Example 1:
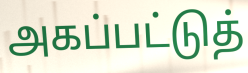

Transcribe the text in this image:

அகப்பட்டுத்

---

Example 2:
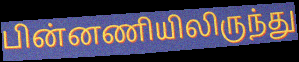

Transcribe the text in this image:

பின்னணியிலிருந்து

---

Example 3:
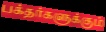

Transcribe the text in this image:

பக்தர்களுக்கும்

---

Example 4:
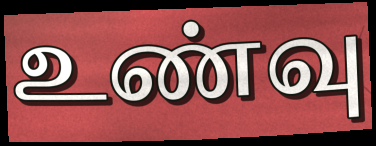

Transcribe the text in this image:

உண்வு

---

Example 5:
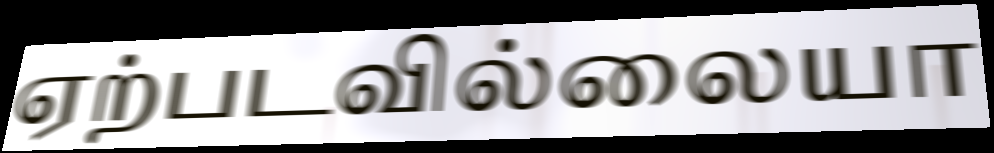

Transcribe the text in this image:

ஏற்படவில்லையா